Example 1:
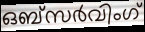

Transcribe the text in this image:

ഒബ്സർവിംഗ്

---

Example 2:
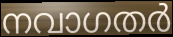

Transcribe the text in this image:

നവാഗതർ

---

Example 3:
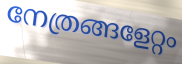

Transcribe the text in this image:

നേത്രങ്ങളേറ്റം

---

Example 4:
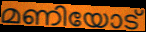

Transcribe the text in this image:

മണിയോട്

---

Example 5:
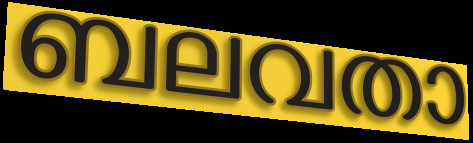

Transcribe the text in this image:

ബലവതാ